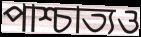
পাশ্চাত্যও